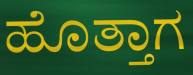
ಹೊತ್ತಾಗ